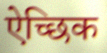
ऐच्छिक